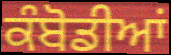
ਕੰਬੋਡੀਆਂ